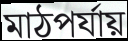
মাঠপর্যায়